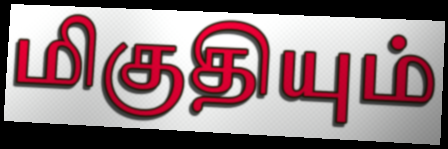
மிகுதியும்